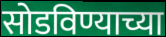
सोडविण्याच्या